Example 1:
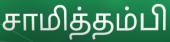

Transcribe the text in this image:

சாமித்தம்பி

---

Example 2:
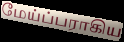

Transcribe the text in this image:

மேய்ப்பராகிய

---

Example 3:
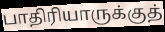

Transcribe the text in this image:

பாதிரியாருக்குத்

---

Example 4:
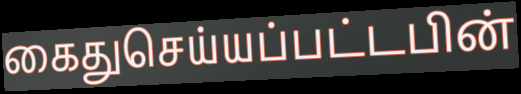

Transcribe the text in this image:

கைதுசெய்யப்பட்டபின்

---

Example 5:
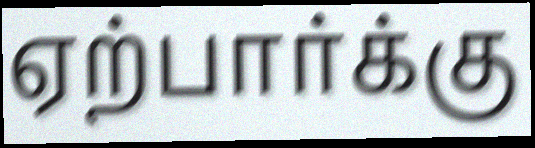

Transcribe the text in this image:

ஏற்பார்க்கு